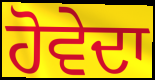
ਹੋਵੇਦਾ